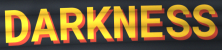
DARKNESS